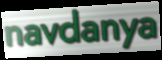
navdanya